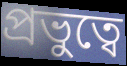
প্রভুত্বে